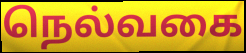
நெல்வகை